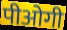
पीओगी